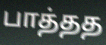
பாத்தத